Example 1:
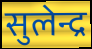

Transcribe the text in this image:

सुलेन्द्र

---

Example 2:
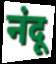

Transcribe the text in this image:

नंदू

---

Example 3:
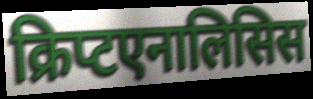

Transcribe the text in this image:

क्रिप्टएनालिसिस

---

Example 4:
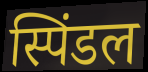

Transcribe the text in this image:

स्पिंडल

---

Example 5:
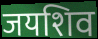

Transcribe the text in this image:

जयशिव